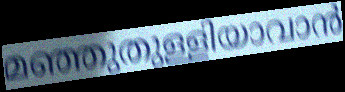
മഞ്ഞുതുള്ളിയാവാൻ